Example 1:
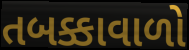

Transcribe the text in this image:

તબક્કાવાળો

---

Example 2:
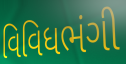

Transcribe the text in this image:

વિવિધભંગી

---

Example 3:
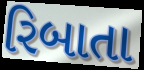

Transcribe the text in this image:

રિબાતા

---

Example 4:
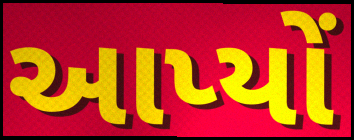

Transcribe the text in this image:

આપ્યોં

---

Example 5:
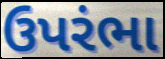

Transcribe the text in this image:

ઉપરંભા